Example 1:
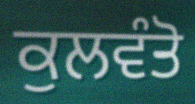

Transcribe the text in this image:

ਕੁਲਵੰਤੋ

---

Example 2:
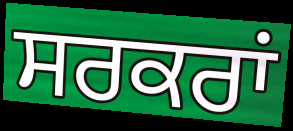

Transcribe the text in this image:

ਸਰਕਰਾਂ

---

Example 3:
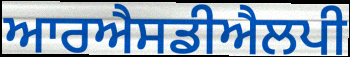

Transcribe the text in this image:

ਆਰਐਸਡੀਐਲਪੀ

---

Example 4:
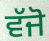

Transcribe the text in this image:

ਵੱਜੋ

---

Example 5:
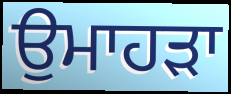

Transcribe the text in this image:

ਉਮਾਹੜਾ